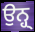
ਉਨ੍ਹ੍